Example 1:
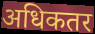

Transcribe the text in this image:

अधिकतर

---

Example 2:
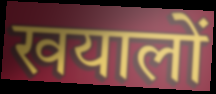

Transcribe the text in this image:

खयालों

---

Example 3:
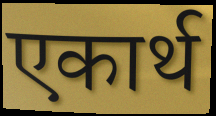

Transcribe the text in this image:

एकार्थ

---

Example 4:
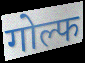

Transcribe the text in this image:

गोल्फ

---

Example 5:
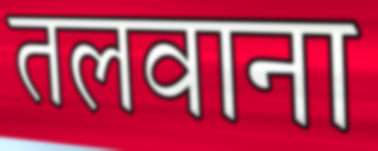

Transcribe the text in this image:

तलवाना